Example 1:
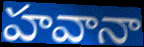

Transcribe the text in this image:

హవానా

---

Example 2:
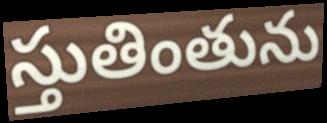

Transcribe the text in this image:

స్తుతింతును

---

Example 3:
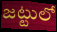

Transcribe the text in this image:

జట్టులో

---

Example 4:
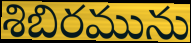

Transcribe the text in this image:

శిబిరమును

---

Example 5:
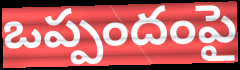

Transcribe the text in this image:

ఒప్పందంపై